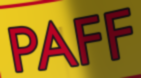
PAFF